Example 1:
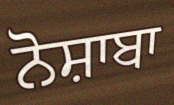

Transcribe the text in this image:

ਨੋਸ਼ਾਬਾ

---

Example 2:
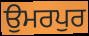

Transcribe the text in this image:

ਉਮਰਪੁਰ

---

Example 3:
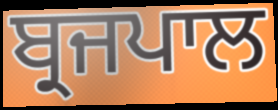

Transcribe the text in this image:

ਬ੍ਰਜਪਾਲ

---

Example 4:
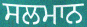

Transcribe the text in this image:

ਸਲਮਾਨ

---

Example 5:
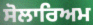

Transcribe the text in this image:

ਸੋਲਾਰਿਅਮ